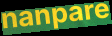
nanpare